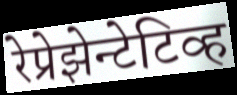
रेप्रेझेन्टेटिव्ह